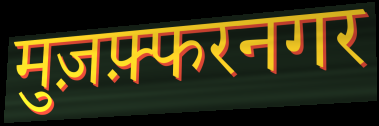
मुज़फ़्फरनगर